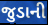
જુડાની